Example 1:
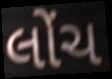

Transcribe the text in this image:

લોંચ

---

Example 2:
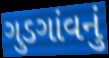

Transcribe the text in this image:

ગુડગાંવનું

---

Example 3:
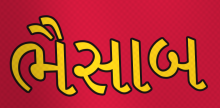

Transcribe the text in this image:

ભૈસાબ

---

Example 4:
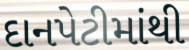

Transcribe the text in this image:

દાનપેટીમાંથી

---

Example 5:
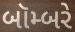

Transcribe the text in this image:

બૉમ્બરે